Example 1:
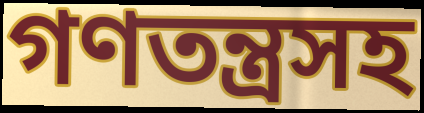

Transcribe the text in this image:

গণতন্ত্রসহ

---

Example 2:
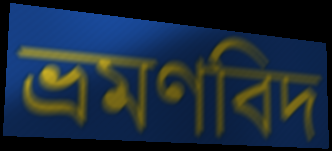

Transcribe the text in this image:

ভ্রমণবিদ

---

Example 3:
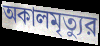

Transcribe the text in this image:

অকালমৃত্যুর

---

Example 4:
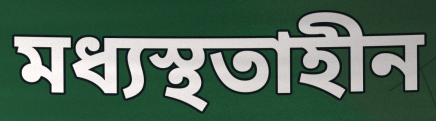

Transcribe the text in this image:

মধ্যস্থতাহীন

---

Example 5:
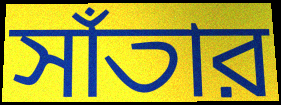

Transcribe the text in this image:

সাঁতার